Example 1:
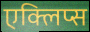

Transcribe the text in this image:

एक्लिप्स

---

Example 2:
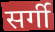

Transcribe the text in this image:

सर्गी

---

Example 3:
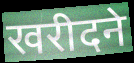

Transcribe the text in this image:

खरीदने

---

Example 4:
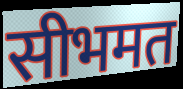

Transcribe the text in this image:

सीभमत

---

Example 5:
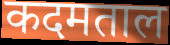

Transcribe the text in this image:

कदमताल